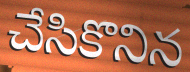
చేసికొనిన